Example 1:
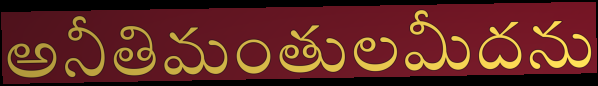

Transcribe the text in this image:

అనీతిమంతులమీదను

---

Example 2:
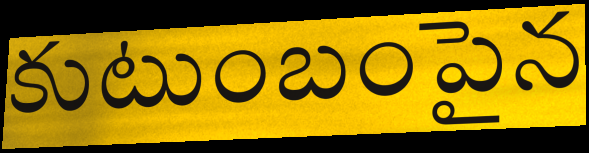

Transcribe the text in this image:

కుటుంబంపైన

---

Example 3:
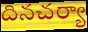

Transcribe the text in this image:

దినచర్యా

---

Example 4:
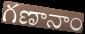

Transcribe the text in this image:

గణానాం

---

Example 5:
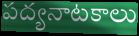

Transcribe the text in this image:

పద్యనాటకాలు